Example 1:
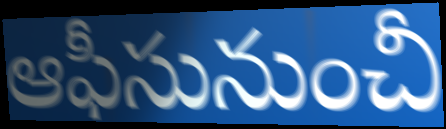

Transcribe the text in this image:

ఆఫీసునుంచీ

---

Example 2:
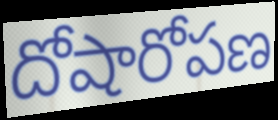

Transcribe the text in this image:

దోషారోపణ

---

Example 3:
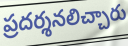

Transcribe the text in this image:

ప్రదర్శనలిచ్చారు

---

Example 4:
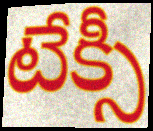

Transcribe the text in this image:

టేక్సీ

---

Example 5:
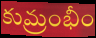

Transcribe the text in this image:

కుమ్రంభీం